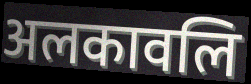
अलकावलि